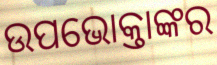
ଉପଭୋକ୍ତାଙ୍କର